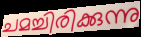
ചമച്ചിരിക്കുന്നു